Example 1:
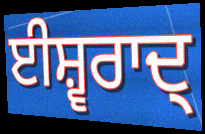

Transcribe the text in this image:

ਈਸ਼੍ਵਰਾਦ੍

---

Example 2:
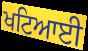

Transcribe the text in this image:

ਖਟਿਆਈ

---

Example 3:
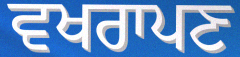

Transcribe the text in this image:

ਵਖਰਾਪਣ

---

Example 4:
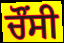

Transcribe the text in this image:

ਚੌਂਸੀ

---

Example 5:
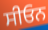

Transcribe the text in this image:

ਸੀਓਨ